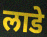
लाडे